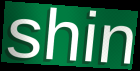
shin